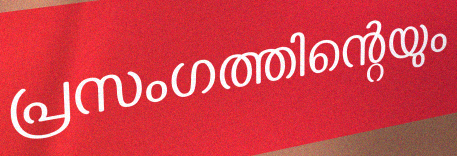
പ്രസംഗത്തിന്റെയും